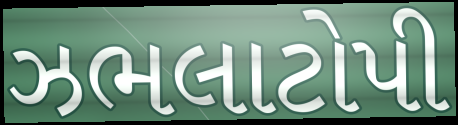
ઝભલાટોપી